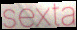
sexta